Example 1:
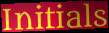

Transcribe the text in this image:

Initials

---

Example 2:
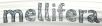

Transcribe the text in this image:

mellifera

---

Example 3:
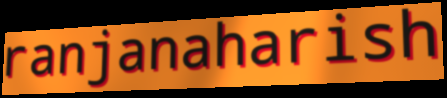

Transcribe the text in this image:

ranjanaharish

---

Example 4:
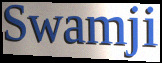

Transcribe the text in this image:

Swamji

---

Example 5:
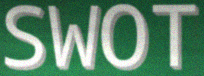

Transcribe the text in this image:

SWOT